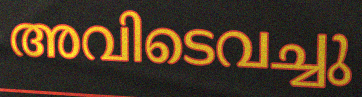
അവിടെവച്ചു